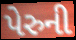
પેરુની